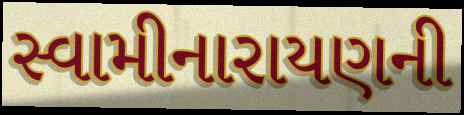
સ્વામીનારાયણની